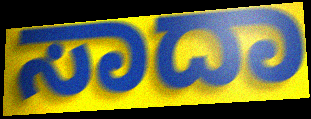
ಸಾದಾ